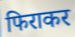
फिराकर